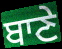
ਬਾਣੇ